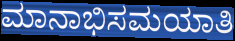
ಮಾನಾಭಿಸಮಯಾತಿ